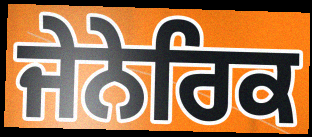
ਜੇਨੇਰਿਕ